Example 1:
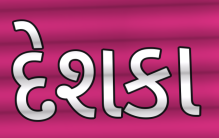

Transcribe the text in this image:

દેશકા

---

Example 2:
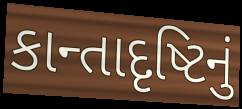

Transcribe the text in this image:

કાન્તાદૃષ્ટિનું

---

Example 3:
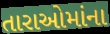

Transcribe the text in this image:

તારાઓમાંના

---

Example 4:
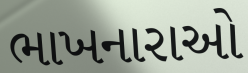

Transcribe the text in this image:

ભાખનારાઓ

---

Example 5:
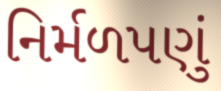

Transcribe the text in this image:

નિર્મળપણું